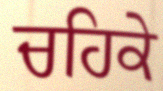
ਚਹਿਕੇ